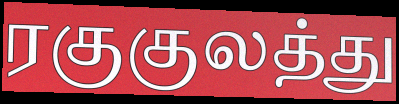
ரகுகுலத்து